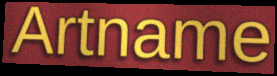
Artname